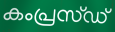
കംപ്രസ്ഡ്